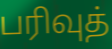
பரிவுத்